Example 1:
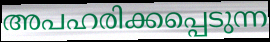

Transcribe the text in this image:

അപഹരിക്കപ്പെടുന്ന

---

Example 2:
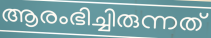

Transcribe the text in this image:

ആരംഭിച്ചിരുന്നത്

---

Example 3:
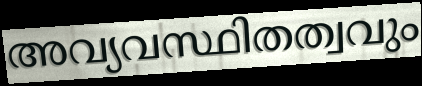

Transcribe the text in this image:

അവ്യവസ്ഥിതത്വവും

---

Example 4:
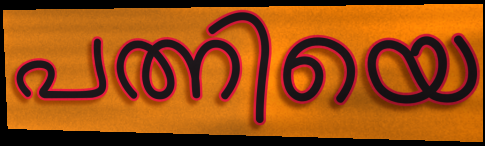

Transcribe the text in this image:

പത്നിയെ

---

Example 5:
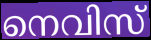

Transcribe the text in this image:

നെവിസ്